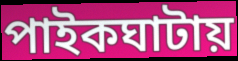
পাইকঘাটায়